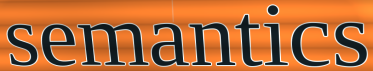
semantics